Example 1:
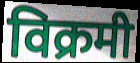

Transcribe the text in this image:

विक्रमी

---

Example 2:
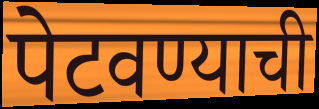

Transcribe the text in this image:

पेटवण्याची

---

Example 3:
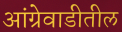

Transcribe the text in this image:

आंग्रेवाडीतील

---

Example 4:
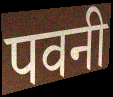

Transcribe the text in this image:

पवनी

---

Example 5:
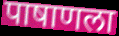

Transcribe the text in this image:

पाषाणला